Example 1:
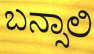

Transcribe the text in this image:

ಬನ್ಸಾಲಿ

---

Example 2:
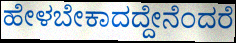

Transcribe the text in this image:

ಹೇಳಬೇಕಾದದ್ದೇನೆಂದರೆ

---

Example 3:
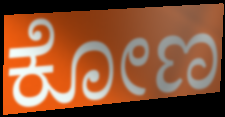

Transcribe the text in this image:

ಕೋಣ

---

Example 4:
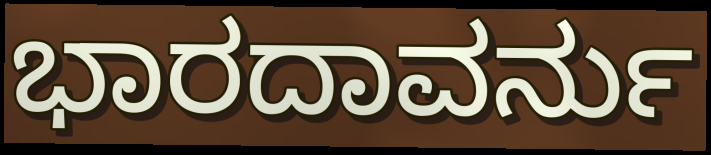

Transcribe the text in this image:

ಭಾರದಾವರ್ನು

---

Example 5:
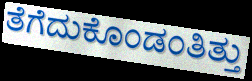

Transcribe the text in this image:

ತೆಗೆದುಕೊಂಡಂತಿತ್ತು